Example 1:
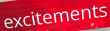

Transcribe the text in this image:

excitements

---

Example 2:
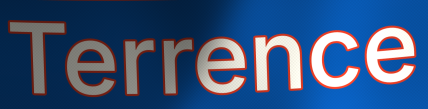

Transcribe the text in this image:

Terrence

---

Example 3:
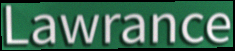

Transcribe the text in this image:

Lawrance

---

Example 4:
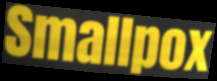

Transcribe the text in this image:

Smallpox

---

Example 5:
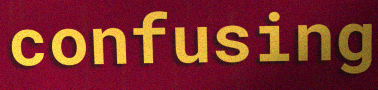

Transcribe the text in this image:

confusing